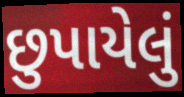
છુપાયેલું